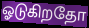
ஓடுகிறதோ